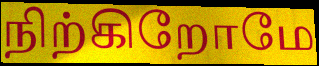
நிற்கிறோமே